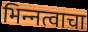
भिन्नत्वाचा